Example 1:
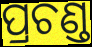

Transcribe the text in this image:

ପ୍ରଚଣ୍ଡ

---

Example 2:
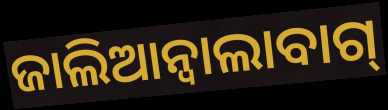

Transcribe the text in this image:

ଜାଲିଆନ୍ଵାଲାବାଗ୍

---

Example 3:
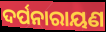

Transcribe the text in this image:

ଦର୍ପନାରାୟଣ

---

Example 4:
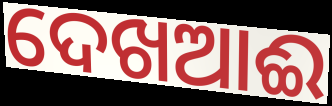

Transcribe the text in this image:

ଦେଖଆଈ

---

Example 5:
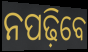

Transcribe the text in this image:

ନପଢ଼ିବେ